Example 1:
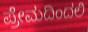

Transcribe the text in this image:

ಪ್ರೇಮದಿಂದಲಿ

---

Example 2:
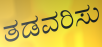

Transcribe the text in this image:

ತಡವರಿಸು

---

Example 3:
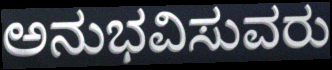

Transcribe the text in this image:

ಅನುಭವಿಸುವರು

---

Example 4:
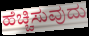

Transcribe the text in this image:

ಹೆಚ್ಚಿಸುವುದು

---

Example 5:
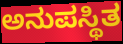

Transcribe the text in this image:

ಅನುಪಸ್ಥಿತ